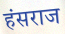
हंसराज